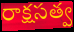
రాక్షసత్వ